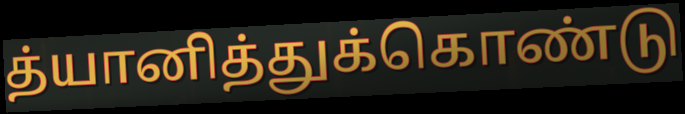
த்யானித்துக்கொண்டு